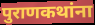
पुराणकथांना